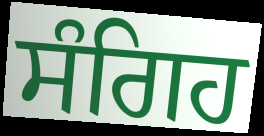
ਸੰਗਿਹ